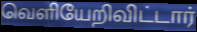
வெளியேறிவிட்டார்